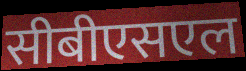
सीबीएसएल